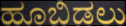
ಹೂಬಿಡಲು